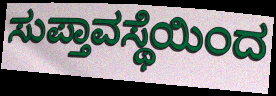
ಸುಪ್ತಾವಸ್ಥೆಯಿಂದ